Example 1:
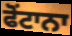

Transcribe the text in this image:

ਫੋਂਟਾਨਾ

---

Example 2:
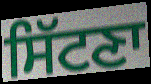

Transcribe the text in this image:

ਸਿੱਟਣਾ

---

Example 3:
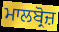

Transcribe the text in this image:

ਮਾਲਬ੍ਰੋਜ਼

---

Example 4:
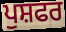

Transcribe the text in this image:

ਪੁਸ਼ਫਰ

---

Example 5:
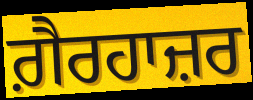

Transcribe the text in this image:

ਗ਼ੈਰਹਾਜ਼ਰ